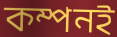
কম্পনই